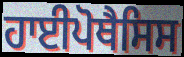
ਹਾਈਪੋਥੈਸਿਸ